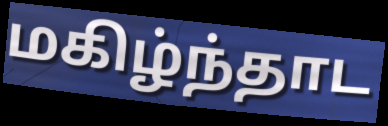
மகிழ்ந்தாட